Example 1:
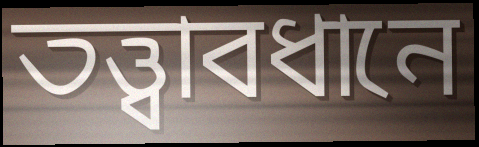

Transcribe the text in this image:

তত্ত্বাবধানে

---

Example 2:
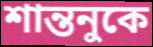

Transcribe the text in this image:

শান্তনুকে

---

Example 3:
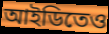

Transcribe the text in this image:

আইডিতেও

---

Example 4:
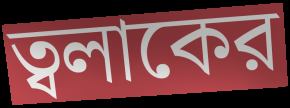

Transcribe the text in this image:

ত্বলাকের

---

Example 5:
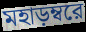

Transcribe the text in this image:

মহাড়ম্বরে